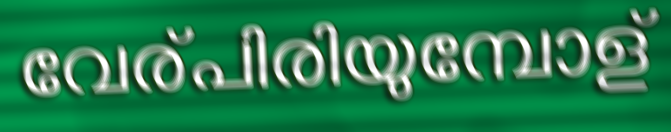
വേര്പിരിയുമ്പോള്